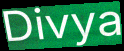
Divya